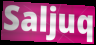
Saljuq